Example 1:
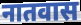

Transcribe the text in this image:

नातवास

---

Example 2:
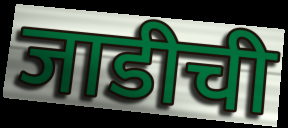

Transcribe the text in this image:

जाडीची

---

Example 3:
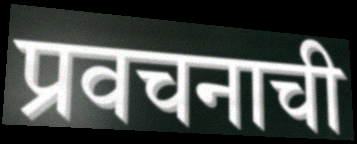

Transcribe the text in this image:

प्रवचनाची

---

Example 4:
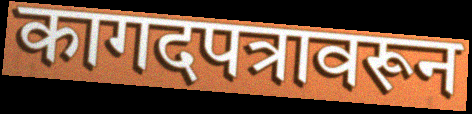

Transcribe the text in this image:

कागदपत्रावरून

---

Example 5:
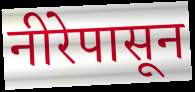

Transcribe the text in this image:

नीरेपासून